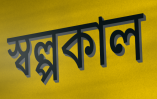
স্বল্পকাল